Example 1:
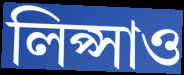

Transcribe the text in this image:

লিপ্সাও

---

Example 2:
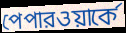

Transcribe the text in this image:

পেপারওয়ার্কে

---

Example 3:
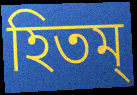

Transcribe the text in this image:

হিতম্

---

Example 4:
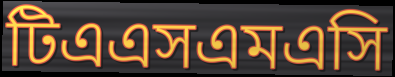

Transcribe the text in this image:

টিএএসএমএসি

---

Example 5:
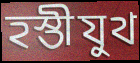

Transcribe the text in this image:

হস্তীযুথ